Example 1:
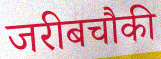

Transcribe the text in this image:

जरीबचौकी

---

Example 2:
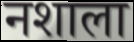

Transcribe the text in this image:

नशाला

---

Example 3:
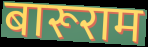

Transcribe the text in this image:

बारूराम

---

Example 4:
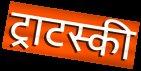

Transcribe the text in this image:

ट्राटस्की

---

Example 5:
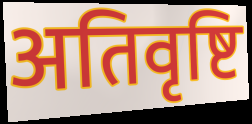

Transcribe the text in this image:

अतिवृष्टि